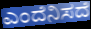
ಎಂದೆನಿಸದೆ